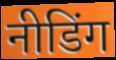
नीडिंग